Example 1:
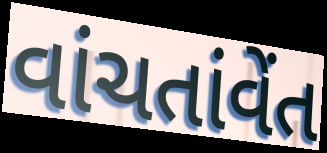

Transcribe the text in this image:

વાંચતાંવેંત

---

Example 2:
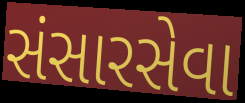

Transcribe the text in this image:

સંસારસેવા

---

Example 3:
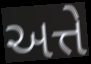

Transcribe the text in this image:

અત્તે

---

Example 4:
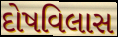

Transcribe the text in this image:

દોષવિલાસ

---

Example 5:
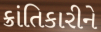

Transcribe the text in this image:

ક્રાંતિકારીને